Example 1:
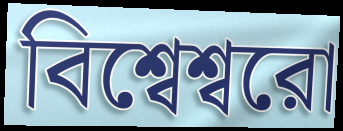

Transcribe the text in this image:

বিশ্বেশ্বরো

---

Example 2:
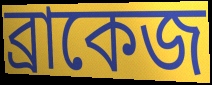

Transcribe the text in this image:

ব্রাকেজ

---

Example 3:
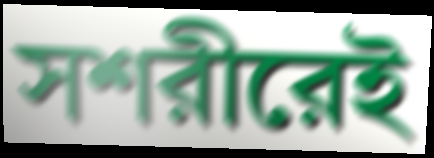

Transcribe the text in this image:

সশরীরেই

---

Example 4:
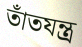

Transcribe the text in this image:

তাঁতযন্ত্র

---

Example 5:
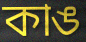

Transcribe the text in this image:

কাঙ